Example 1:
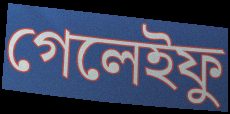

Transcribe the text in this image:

গেলেইফু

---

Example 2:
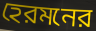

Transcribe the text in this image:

হেরমনের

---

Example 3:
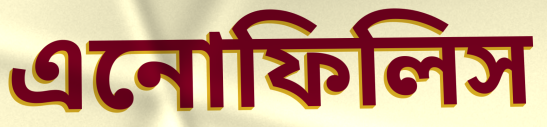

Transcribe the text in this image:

এনোফিলিস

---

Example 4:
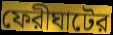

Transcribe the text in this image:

ফেরীঘাটের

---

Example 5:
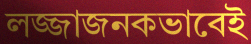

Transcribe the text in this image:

লজ্জাজনকভাবেই